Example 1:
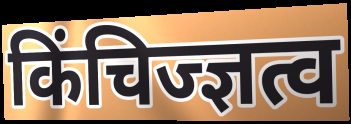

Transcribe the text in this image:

किंचिज्ज्ञत्व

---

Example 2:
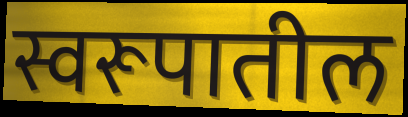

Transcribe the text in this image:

स्वरूपातील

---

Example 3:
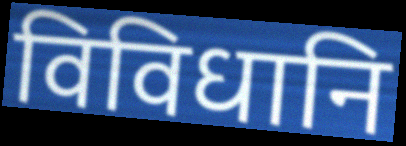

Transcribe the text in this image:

विविधानि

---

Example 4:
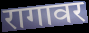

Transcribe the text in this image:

रागावर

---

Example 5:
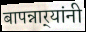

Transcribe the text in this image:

बापन्नार्यांनी